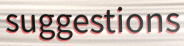
suggestions